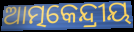
ଆତ୍ମକେନ୍ଦ୍ରୀୟ